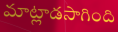
మాట్లాడసాగింది